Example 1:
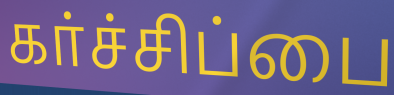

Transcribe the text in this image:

கர்ச்சிப்பை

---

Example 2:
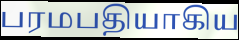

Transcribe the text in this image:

பரமபதியாகிய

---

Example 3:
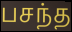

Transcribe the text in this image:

பசந்த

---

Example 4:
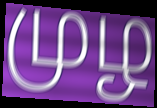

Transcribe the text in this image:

முழ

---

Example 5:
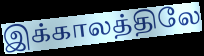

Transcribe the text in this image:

இக்காலத்திலே